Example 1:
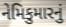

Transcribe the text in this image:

નેમિકુમારનું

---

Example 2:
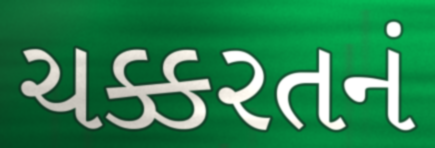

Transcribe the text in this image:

ચક્કરતનં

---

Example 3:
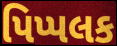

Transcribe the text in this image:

પિપ્પલક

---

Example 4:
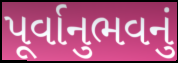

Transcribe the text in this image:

પૂર્વાનુભવનું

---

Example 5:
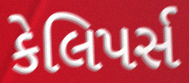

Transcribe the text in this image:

કેલિપર્સ